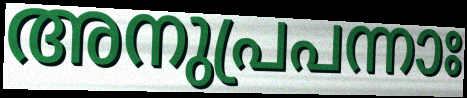
അനുപ്രപന്നാഃ